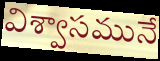
విశ్వాసమునే